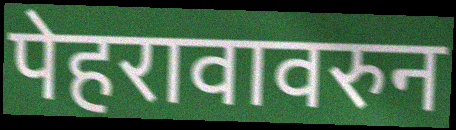
पेहरावावरुन